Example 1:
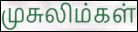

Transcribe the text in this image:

முசுலிம்கள்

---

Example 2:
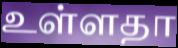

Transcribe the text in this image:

உள்ளதா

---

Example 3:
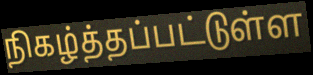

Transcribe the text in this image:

நிகழ்த்தப்பட்டுள்ள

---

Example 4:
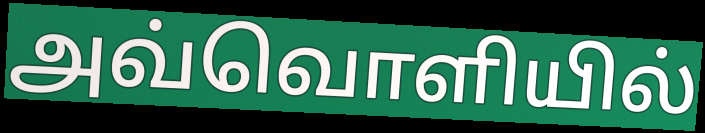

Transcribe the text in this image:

அவ்வொளியில்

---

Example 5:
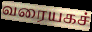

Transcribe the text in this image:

வரையகச்